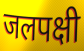
जलपक्षी